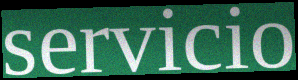
servicio